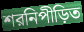
শরনিপীড়িত